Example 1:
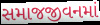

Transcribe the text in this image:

સમાજજીવનમાં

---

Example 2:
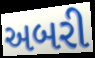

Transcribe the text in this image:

અબરી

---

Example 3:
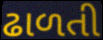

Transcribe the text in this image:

ઢાળતી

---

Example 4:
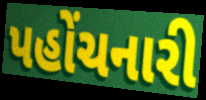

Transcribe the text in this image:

પહોંચનારી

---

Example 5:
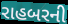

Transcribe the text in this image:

રાહબરની